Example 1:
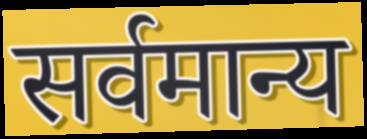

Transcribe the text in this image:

सर्वमान्य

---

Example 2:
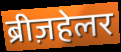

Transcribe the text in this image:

ब्रीज़हेलर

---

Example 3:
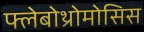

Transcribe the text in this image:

फ्लेबोथ्रोमोसिस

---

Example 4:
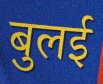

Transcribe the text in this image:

बुलई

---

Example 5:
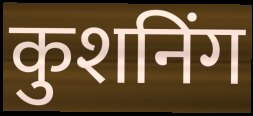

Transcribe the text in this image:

कुशनिंग